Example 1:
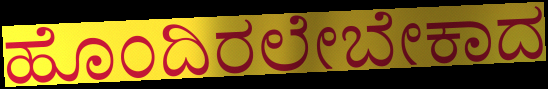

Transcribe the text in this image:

ಹೊಂದಿರಲೇಬೇಕಾದ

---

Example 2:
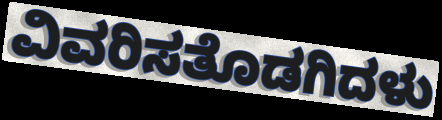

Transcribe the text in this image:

ವಿವರಿಸತೊಡಗಿದಳು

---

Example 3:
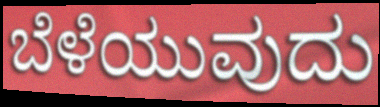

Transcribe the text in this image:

ಬೆಳೆಯುವುದು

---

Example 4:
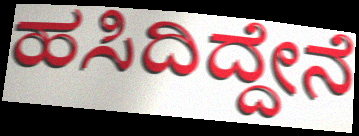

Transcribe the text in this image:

ಹಸಿದಿದ್ದೇನೆ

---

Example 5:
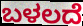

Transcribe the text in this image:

ಬಳಲದೆ